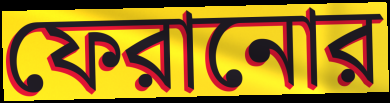
ফেরানোর